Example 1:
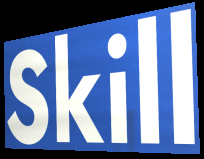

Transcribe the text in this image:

Skill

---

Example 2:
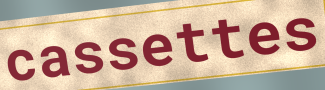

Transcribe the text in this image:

cassettes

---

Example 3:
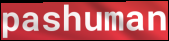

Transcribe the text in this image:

pashuman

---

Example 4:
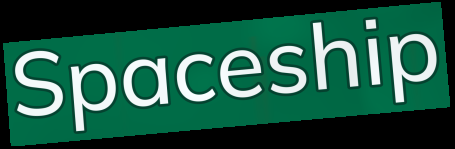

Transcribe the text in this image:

Spaceship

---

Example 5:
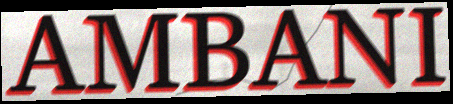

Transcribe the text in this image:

AMBANI